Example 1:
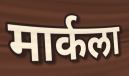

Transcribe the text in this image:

मार्कला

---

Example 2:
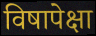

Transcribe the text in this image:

विषापेक्षा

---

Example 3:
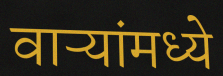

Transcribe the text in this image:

वाऱ्यांमध्ये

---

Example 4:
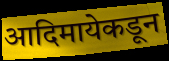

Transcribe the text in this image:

आदिमायेकडून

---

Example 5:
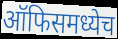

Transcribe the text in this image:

ऑफिसमध्येच